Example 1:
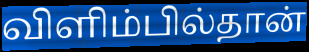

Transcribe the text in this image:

விளிம்பில்தான்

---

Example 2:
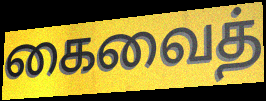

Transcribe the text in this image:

கைவைத்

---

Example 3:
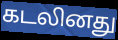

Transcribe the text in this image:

கடலினது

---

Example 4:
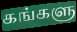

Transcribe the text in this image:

கங்களு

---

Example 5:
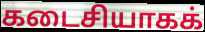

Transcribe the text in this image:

கடைசியாகக்